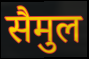
सैमुल